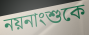
নয়নাংশুকে